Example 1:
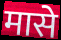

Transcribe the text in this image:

मासे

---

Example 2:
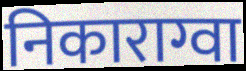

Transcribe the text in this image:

निकाराग्वा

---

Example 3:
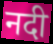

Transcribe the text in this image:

नदी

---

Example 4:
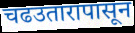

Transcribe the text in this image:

चढउतारापासून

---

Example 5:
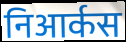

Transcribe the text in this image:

निआर्कस